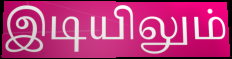
இடியிலும்